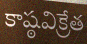
కాష్ఠవిక్రేత